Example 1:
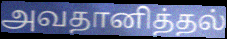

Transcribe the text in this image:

அவதானித்தல்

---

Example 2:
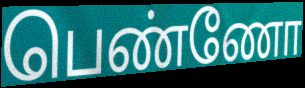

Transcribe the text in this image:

பெண்ணோ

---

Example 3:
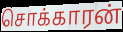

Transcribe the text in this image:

சொக்காரன்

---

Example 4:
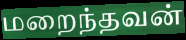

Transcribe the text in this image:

மறைந்தவன்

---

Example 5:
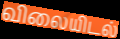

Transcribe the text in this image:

விலையிடல்